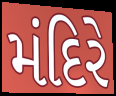
મંદિરે